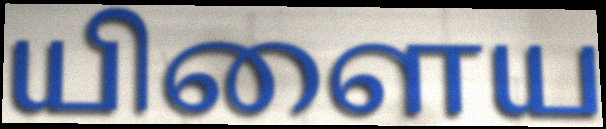
யிளைய